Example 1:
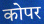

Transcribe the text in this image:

कोपर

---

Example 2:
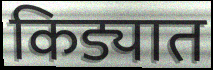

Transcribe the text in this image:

किड्यात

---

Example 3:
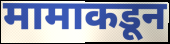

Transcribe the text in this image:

मामाकडून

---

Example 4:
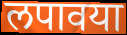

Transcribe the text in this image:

लपावया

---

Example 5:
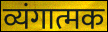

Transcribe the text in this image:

व्यंगात्मक